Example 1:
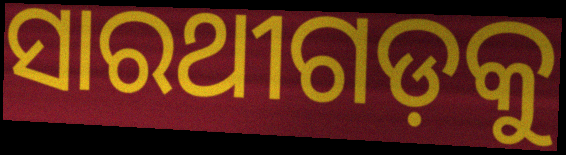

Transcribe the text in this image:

ସାରଥୀଗଡ଼କୁ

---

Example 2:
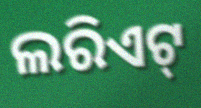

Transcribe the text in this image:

ଲରିଏଟ୍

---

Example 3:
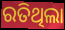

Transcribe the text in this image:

ରତିଥିଲା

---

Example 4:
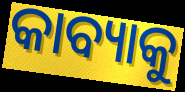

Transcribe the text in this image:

କାବ୍ୟାକୁ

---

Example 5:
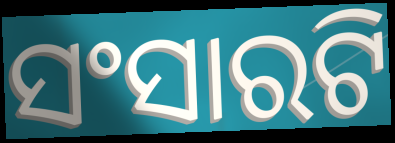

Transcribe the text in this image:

ସଂସାରଟି